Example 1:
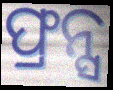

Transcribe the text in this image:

ଫ୍ରନ୍ସ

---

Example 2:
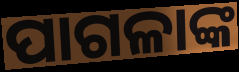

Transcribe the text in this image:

ପାଗଳାଙ୍କ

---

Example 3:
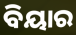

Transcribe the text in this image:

ବିୟାର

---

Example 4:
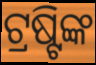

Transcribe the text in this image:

ଟ୍ରଷ୍ଟିଙ୍କ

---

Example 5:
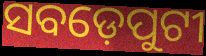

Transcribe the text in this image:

ସବଡ଼େପୁଟୀ